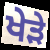
ਖੇੜੇ